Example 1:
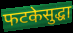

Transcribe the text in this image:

फटकेसुद्धा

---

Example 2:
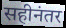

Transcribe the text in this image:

सहीनंतर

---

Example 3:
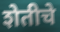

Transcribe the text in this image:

शेतीचे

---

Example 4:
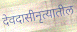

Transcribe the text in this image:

देवदासीनृत्यातील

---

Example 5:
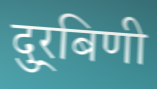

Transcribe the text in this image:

दुर्बिणी